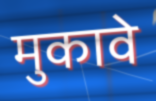
मुकावे